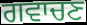
ਗਵਾਚਣ